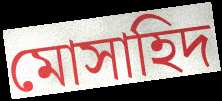
মোসাহিদ